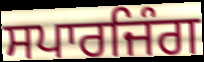
ਸਪਾਰਜਿੰਗ